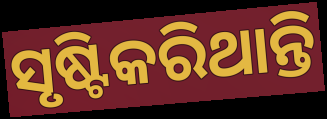
ସୃଷ୍ଟିକରିଥାନ୍ତି